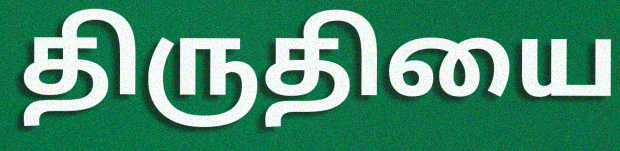
திருதியை